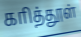
கரித்தூள்